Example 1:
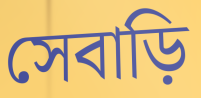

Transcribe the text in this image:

সেবাড়ি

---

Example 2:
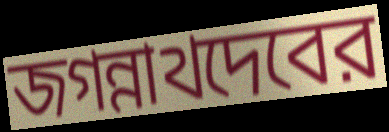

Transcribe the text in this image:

জগন্নাথদেবের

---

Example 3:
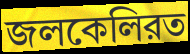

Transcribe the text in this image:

জলকেলিরত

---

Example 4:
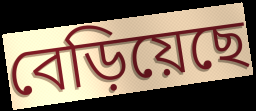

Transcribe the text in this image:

বেড়িয়েছে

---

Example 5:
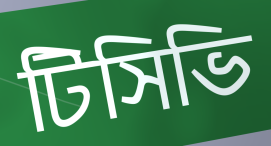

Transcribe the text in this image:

টিসিভি